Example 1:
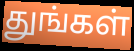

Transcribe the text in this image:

துங்கள்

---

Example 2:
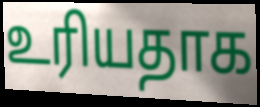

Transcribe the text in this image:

உரியதாக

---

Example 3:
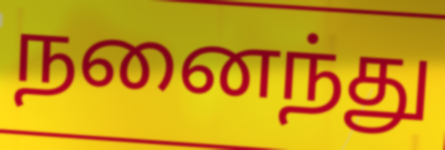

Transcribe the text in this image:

நனைந்து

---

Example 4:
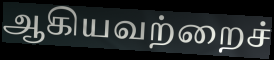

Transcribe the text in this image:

ஆகியவற்றைச்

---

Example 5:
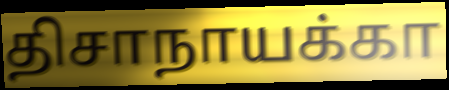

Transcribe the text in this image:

திசாநாயக்கா